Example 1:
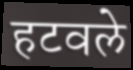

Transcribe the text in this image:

हटवले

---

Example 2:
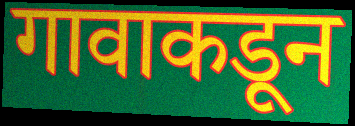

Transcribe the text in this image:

गावाकडून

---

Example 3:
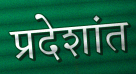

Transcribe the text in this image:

प्रदेशांत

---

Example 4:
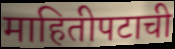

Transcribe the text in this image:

माहितीपटाची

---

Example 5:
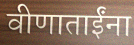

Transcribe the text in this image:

वीणाताईंना